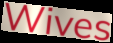
Wives